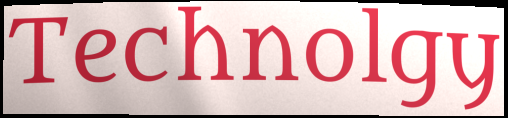
Technolgy